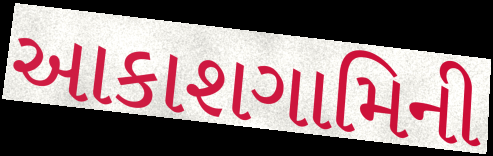
આકાશગામિની